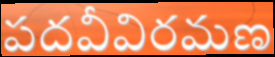
పదవీవిరమణ